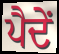
ਪੈਦੇਂ